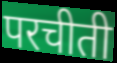
परचीती